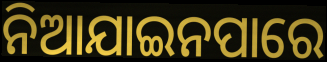
ନିଆଯାଇନପାରେ